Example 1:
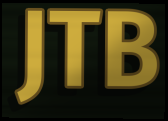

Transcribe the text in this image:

JTB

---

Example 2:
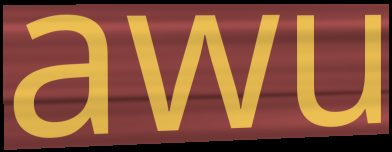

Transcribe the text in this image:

awu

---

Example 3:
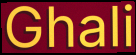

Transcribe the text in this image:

Ghali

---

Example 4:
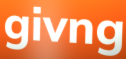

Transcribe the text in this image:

givng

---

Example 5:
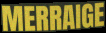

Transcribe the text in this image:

MERRAIGE